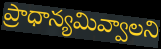
ప్రాధాన్యమివ్వాలని